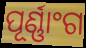
ପୂର୍ଣ୍ଣାଂଗ